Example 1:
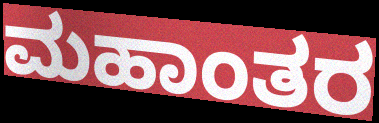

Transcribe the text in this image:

ಮಹಾಂತರ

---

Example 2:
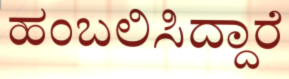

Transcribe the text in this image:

ಹಂಬಲಿಸಿದ್ದಾರೆ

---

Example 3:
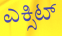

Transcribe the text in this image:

ಎಕ್ಸಿಟ್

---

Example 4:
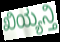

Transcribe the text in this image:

ಖಿಯ್ಯನ್ತಿ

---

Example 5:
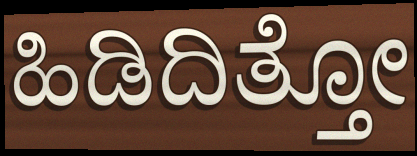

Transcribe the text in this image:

ಹಿಡಿದಿತ್ತೋ